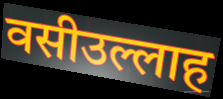
वसीउल्लाह